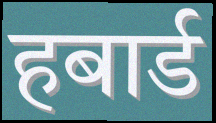
हबार्ड